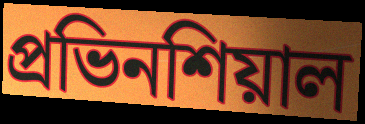
প্রভিনশিয়াল